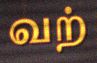
வற்